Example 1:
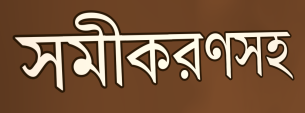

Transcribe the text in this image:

সমীকরণসহ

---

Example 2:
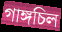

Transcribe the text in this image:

গাঙ্গচিল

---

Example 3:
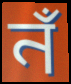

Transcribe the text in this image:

নঁ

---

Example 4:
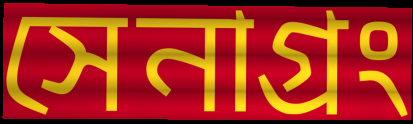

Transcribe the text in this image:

সেনাগ্রং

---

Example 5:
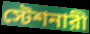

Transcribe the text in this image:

স্টেশনারী